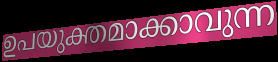
ഉപയുക്തമാക്കാവുന്ന